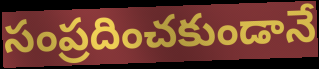
సంప్రదించకుండానే